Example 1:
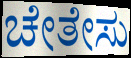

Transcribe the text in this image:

ಚೇತೇಸು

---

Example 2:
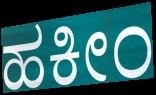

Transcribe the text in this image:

ಹಕೀಂ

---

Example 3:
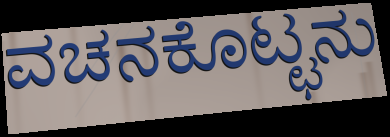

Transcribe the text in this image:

ವಚನಕೊಟ್ಟನು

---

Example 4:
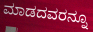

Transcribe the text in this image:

ಮಾಡದವರನ್ನೂ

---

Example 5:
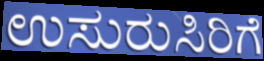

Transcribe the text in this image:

ಉಸುರುಸಿರಿಗೆ